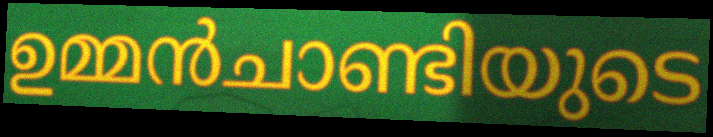
ഉമ്മൻചാണ്ടിയുടെ